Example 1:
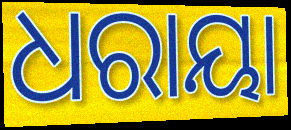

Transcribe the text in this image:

ଧରାୟା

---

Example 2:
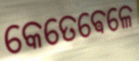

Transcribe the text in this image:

କେତେଵେଳେ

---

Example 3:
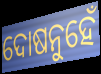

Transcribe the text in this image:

ଦୋଷନୁହେଁ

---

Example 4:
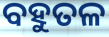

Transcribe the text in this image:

ବହୁତଳ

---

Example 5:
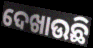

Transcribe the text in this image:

ଦେଖାଉଛି